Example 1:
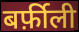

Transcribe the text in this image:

बर्फ़ीली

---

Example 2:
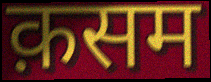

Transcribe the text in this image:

क़सम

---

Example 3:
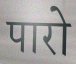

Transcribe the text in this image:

पारो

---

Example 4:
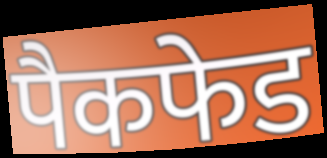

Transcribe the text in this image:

पैकफेड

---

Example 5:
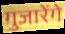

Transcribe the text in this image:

गुजारेंगे